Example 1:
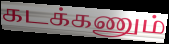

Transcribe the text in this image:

கடக்கணும்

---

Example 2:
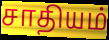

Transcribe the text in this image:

சாதியம்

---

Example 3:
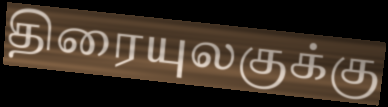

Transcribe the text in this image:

திரையுலகுக்கு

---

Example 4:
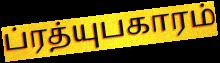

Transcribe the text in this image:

ப்ரத்யுபகாரம்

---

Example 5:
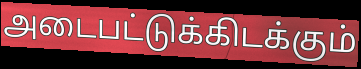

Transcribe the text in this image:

அடைபட்டுக்கிடக்கும்